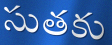
సుతకు